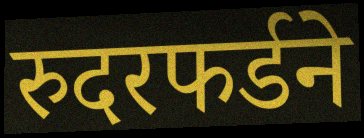
रुदरफर्डने